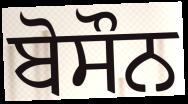
ਬੋਸੌਨ